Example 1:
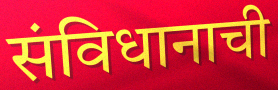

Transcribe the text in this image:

संविधानाची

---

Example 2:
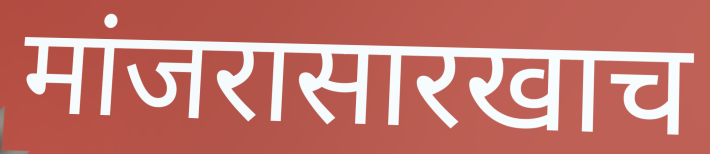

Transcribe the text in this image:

मांजरासारखाच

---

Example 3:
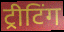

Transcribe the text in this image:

ट्रीटिंग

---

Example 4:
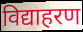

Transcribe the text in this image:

विद्याहरण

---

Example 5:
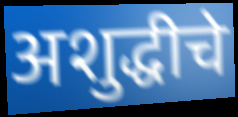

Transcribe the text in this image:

अशुद्धीचे